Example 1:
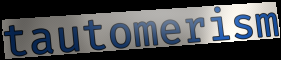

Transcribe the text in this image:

tautomerism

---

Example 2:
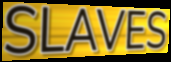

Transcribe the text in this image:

SLAVES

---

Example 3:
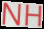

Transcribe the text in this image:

NH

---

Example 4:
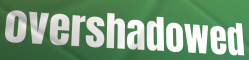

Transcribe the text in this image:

overshadowed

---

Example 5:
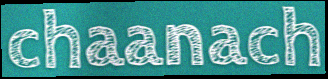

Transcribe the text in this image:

chaanach